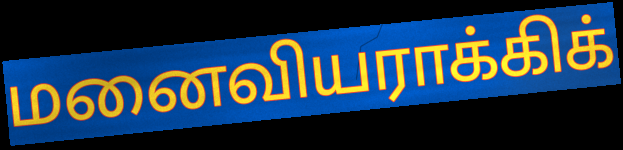
மனைவியராக்கிக்